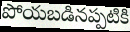
పోయబడినప్పటికి